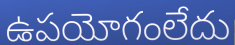
ఉపయోగంలేదు